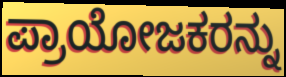
ಪ್ರಾಯೋಜಕರನ್ನು